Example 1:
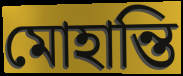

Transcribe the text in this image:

মোহান্তি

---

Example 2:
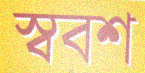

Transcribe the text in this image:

স্ববশ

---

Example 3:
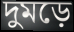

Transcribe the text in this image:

দুমড়ে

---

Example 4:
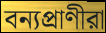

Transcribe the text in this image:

বন্যপ্রাণীরা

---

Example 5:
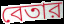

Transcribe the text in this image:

বেতার